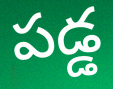
పడ్డ